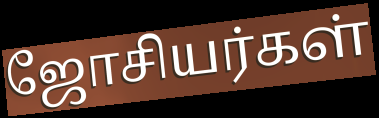
ஜோசியர்கள்